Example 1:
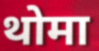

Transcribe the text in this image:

थोमा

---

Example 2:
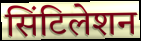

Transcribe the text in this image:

सिंटिलेशन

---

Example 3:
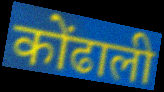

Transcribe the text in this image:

कोंढाली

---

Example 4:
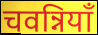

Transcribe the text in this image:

चवन्नियाँ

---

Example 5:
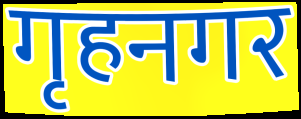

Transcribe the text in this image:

गृहनगर